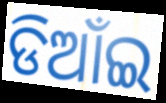
ଡିଆଁଇ